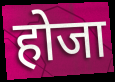
होजा